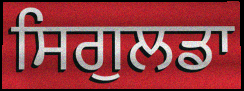
ਸਿਗੁਲਡਾ